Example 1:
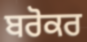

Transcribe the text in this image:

ਬਰੋਕਰ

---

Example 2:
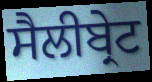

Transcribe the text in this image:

ਸੈਲੀਬ੍ਰੇਟ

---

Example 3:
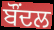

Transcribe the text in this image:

ਬੌਂਦਲ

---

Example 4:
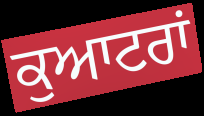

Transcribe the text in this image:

ਕੁਆਟਰਾਂ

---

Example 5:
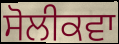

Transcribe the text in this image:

ਸੋਲੀਕਵਾ